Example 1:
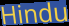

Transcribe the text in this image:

Hindu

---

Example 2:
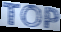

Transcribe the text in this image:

TOP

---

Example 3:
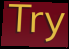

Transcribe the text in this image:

Try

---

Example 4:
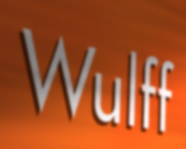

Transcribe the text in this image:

Wulff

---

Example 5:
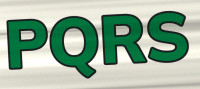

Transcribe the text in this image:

PQRS